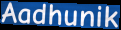
Aadhunik